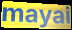
mayai